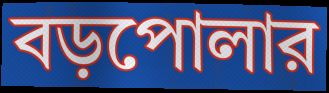
বড়পোলার